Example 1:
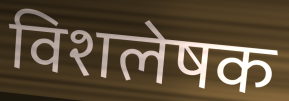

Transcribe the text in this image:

विशलेषक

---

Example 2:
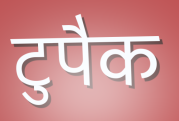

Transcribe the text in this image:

टुपैक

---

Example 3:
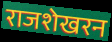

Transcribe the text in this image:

राजशेखरन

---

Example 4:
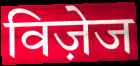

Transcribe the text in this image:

विज़ेज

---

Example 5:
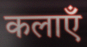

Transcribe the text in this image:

कलाएँ